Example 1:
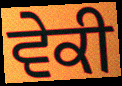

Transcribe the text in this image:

ਵੇਕੀ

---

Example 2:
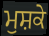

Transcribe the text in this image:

ਮੁਸ਼ਕੇ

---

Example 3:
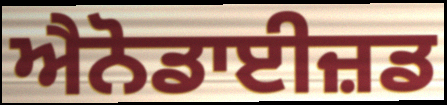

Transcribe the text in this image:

ਐਨੋਡਾਈਜ਼ਡ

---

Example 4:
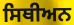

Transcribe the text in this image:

ਸਿਥੀਅਨ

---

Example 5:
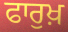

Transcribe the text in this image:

ਫਾਰੁਖ਼